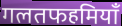
गलतफहमियाँ